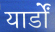
यार्डों